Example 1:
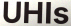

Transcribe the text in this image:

UHIs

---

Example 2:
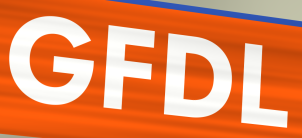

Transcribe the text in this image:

GFDL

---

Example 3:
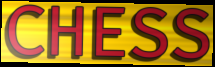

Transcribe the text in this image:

CHESS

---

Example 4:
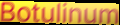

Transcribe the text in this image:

Botulinum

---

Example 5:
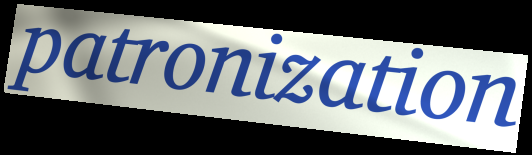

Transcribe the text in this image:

patronization